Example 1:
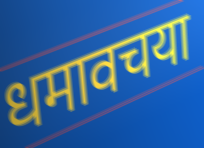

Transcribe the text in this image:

धमावचया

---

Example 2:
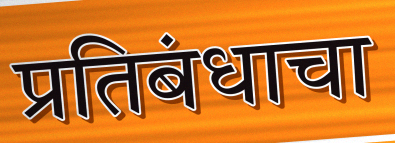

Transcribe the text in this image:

प्रतिबंधाचा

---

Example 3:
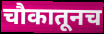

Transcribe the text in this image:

चौकातूनच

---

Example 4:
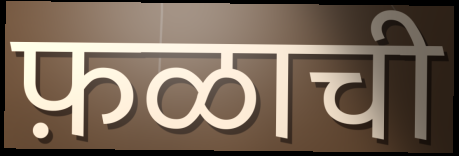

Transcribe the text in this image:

फ़ळाची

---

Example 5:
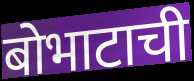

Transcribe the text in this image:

बोभाटाची